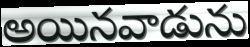
అయినవాడును